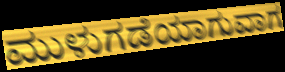
ಮುಳುಗಡೆಯಾಗುವಾಗ